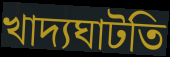
খাদ্যঘাটতি